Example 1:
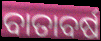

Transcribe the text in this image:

ବାତାବର୍ଷ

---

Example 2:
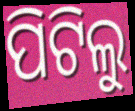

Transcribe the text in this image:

ପିଟିଲୁ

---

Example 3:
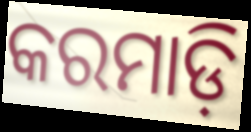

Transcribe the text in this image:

କରମାଡ଼ି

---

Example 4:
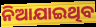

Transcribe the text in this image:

ନିଆଯାଇଥିବ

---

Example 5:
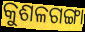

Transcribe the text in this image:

କୁଶଳଗଙ୍ଗା